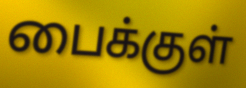
பைக்குள்